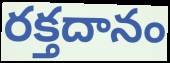
రక్తదానం